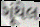
ગૂંથેલ